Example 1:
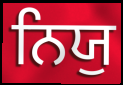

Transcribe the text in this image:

ਨਿਯੁ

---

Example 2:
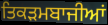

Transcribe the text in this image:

ਤਿਕੜਮਬਾਜੀਆਂ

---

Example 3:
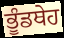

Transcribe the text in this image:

ਭੂੰਡਥੇਹ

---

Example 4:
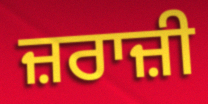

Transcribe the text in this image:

ਜ਼ਰਾਜ਼ੀ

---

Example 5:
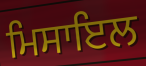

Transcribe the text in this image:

ਮਿਸਾਇਲ